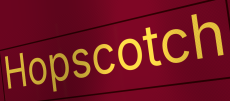
Hopscotch